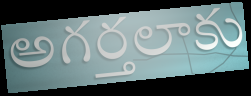
అగర్తలాకు